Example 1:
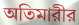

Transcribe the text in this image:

অতিমারীর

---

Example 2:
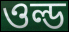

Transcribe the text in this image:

ওল্ড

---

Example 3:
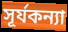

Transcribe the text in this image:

সূর্যকন্যা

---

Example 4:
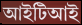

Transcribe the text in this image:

আইটিআই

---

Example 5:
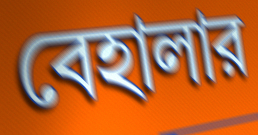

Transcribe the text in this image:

বেহালার